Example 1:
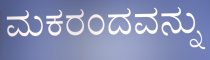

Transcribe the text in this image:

ಮಕರಂದವನ್ನು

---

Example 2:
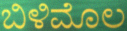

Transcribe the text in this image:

ಬಿಳಿಮೊಲ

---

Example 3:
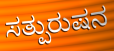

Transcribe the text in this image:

ಸತ್ಪುರುಷನ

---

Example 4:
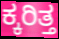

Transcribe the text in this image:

ಕ್ಕರಿತ್ತ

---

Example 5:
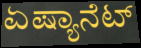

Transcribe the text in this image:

ಏಷ್ಯಾನೆಟ್